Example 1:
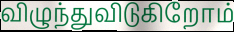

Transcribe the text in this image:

விழுந்துவிடுகிறோம்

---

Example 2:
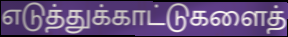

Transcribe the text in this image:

எடுத்துக்காட்டுகளைத்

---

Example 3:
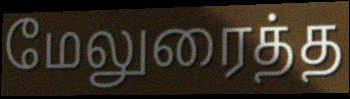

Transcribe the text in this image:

மேலுரைத்த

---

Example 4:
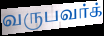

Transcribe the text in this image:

வருபவர்க்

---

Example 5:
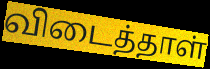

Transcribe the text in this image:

விடைத்தாள்